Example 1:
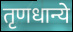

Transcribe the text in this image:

तृणधान्ये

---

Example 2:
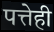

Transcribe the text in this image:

पत्तेही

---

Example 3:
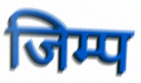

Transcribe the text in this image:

जिम्प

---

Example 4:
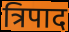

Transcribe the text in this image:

त्रिपाद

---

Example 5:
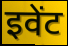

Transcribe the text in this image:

इवेंट